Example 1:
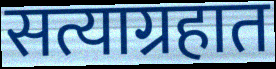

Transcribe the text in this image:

सत्याग्रहात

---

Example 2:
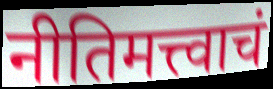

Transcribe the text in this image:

नीतिमत्त्वाचं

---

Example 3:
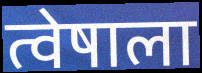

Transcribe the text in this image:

त्वेषाला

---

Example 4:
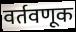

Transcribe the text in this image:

वर्तवणूक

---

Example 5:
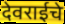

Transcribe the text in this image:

देवराईचे